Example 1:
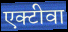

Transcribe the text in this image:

एक्टीवा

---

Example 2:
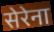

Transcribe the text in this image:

सेरेना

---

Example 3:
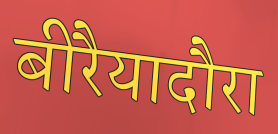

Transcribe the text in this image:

बीरैयादौरा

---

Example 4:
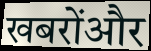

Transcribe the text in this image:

खबरोंऔर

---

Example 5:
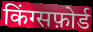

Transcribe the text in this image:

किंग्सफ़ोर्ड